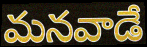
మనవాడే